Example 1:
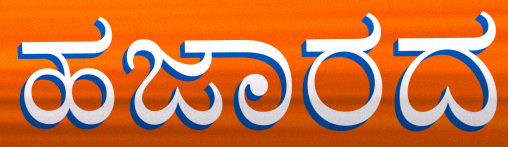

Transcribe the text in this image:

ಹಜಾರದ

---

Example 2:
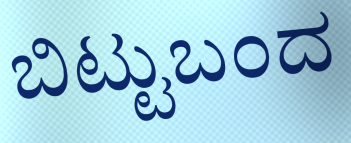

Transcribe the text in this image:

ಬಿಟ್ಟುಬಂದ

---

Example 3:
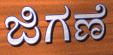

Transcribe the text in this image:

ಜಿಗಣೆ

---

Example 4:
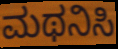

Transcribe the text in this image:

ಮಥನಿಸಿ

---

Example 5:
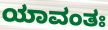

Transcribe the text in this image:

ಯಾವಂತಃ